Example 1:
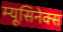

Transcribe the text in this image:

म्यूसिनेक्स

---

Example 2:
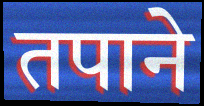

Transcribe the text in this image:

तपाने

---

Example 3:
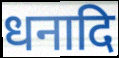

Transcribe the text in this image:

धनादि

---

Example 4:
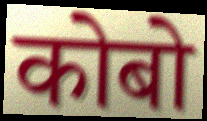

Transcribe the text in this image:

कोबो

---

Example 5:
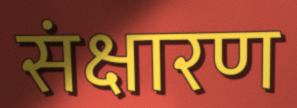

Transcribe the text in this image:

संक्षारण